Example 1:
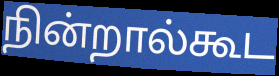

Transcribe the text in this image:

நின்றால்கூட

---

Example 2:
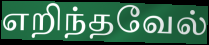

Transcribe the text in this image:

எறிந்தவேல்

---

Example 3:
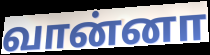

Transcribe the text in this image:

வான்னா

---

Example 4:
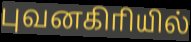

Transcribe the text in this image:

புவனகிரியில்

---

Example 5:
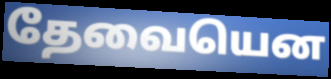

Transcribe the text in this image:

தேவையென